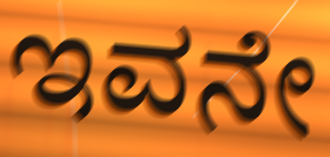
ಇವನೇ